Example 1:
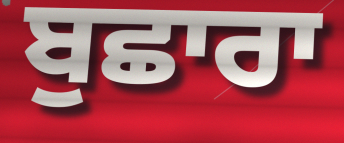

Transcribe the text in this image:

ਬੁਛਾਰਾ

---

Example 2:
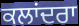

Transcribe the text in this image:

ਕਲਾਂਦਰਾ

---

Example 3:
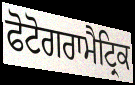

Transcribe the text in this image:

ਫੋਟੋਗਰਾਮੈਟ੍ਰਿਕ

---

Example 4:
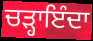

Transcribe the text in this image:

ਚੜ੍ਹਾਇੰਦਾ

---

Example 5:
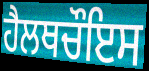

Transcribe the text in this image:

ਹੈਲਥਚੌਇਸ